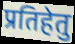
प्रतिहेतु